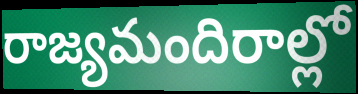
రాజ్యమందిరాల్లో